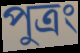
পুত্রং